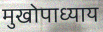
मुखोपाध्‍याय